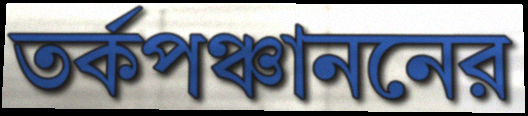
তর্কপঞ্চাননের